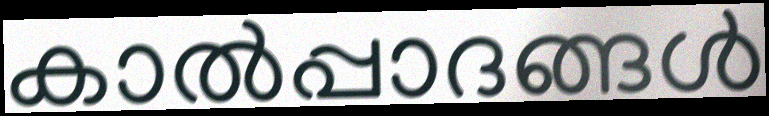
കാൽപ്പാദങ്ങൾ